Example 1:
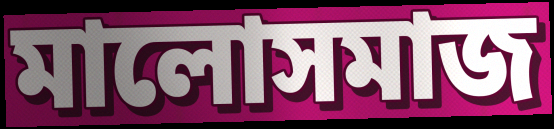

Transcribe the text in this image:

মালোসমাজ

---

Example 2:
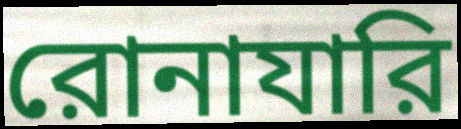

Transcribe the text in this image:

রোনাযারি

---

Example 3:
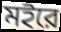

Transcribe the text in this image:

মইরে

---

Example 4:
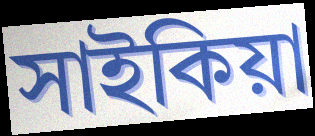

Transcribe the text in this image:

সাইকিয়া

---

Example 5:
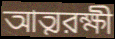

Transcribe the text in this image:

আত্মরক্ষী